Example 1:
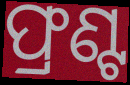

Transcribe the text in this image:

ଫ୍ରଣ୍ଟ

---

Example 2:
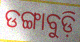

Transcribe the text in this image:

ଡଙ୍ଗାବୁଡ଼ି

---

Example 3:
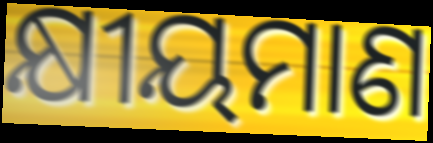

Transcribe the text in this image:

କ୍ଷୀୟମାଣ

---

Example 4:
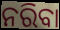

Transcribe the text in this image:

ନରିବା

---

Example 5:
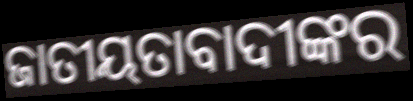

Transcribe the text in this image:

ଜାତୀୟତାବାଦୀଙ୍କର